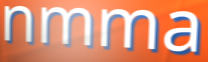
nmma